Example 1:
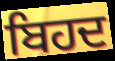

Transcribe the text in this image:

ਬਿਹਦ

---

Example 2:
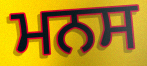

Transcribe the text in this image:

ਮਨਸ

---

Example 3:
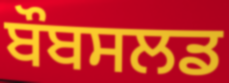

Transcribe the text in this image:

ਬੌਬਸਲਡ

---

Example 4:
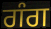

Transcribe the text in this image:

ਗੰਗ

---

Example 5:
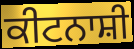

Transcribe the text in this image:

ਕੀਟਨਾਸ਼ੀ